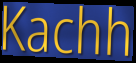
Kachh